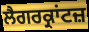
ਲੈਗਰਕ੍ਰਾਂਟਜ਼